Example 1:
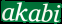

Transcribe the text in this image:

akabi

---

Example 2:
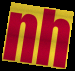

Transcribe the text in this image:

nh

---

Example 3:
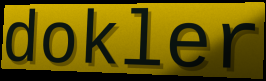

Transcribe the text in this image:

dokler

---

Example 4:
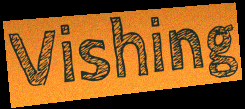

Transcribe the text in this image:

Vishing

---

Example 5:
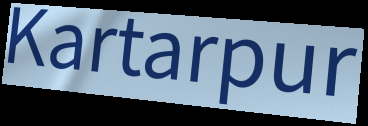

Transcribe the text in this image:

Kartarpur